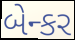
બેન્કર